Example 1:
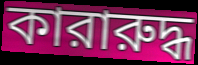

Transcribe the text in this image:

কারারুদ্ধ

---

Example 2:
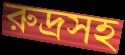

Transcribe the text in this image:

রুদ্রসহ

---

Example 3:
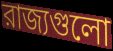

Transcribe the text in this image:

রাজ্যগুলো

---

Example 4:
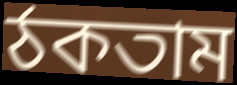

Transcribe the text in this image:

ঠকতাম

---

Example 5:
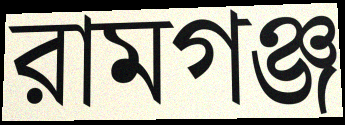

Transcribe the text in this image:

রামগঞ্জ